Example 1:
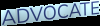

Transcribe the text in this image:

ADVOCATE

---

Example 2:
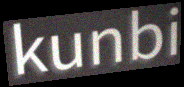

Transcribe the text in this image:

kunbi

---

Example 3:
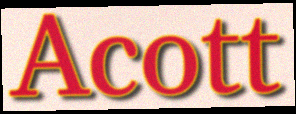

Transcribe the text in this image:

Acott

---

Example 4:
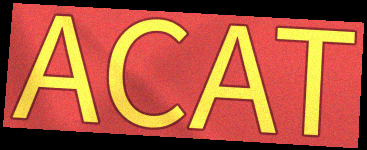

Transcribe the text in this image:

ACAT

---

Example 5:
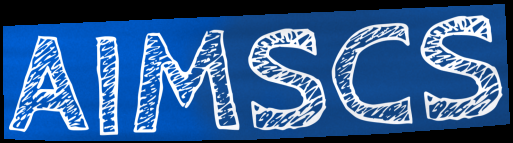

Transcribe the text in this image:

AIMSCS